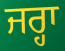
ਜਰ੍ਹਾ